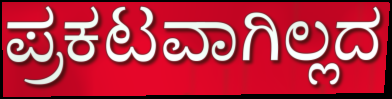
ಪ್ರಕಟವಾಗಿಲ್ಲದ